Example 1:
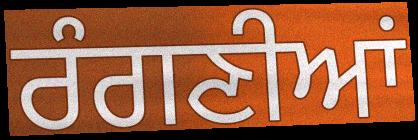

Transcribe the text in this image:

ਰੰਗਣੀਆਂ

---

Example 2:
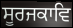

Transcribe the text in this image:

ਸੂਰਜਕਾਵਿ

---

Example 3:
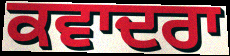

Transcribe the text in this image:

ਕਵਾਦਰਾ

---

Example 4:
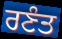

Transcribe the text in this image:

ਰਣੰਤ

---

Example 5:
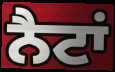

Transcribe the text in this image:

ਨੈਟਾਂ